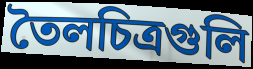
তৈলচিত্রগুলি